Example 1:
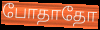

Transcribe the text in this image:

போதாதோ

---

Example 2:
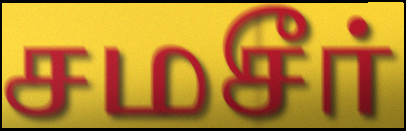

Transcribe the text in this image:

சமசீர்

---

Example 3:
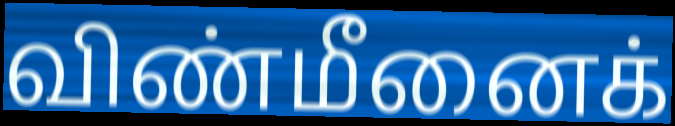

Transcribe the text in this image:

விண்மீனைக்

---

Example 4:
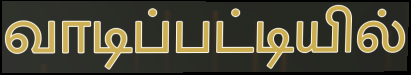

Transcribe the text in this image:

வாடிப்பட்டியில்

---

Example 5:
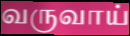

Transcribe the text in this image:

வருவாய்